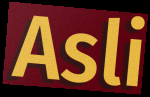
Asli